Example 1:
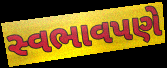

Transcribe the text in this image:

સ્વભાવપણે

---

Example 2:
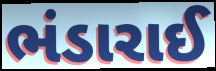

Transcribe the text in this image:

ભંડારાઈ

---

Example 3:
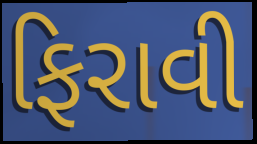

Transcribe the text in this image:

ફિરાવી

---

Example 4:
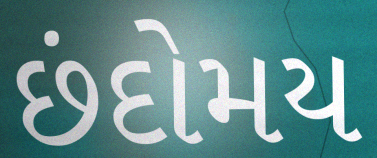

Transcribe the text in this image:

છંદોમય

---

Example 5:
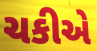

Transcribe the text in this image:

ચકીએ